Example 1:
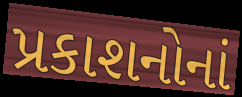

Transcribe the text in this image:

પ્રકાશનોનાં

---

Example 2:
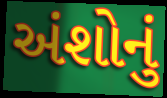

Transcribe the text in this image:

અંશોનું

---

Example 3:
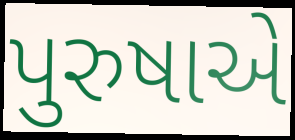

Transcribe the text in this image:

પુરુષાએ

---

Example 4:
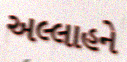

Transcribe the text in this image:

અલ્લાહને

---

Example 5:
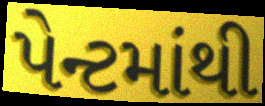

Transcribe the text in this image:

પેન્ટમાંથી